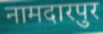
नामदारपुर